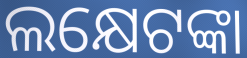
ଲକ୍ଷେଟଙ୍କା